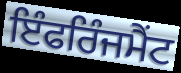
ਇੰਫਰਿੰਜਮੈਂਟ